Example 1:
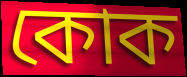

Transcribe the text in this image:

কোক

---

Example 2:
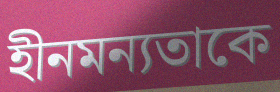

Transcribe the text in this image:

হীনমন্যতাকে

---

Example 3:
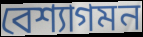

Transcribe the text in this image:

বেশ্যাগমন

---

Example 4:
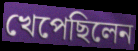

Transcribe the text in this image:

খেপেছিলেন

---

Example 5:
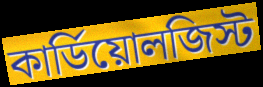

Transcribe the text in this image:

কার্ডিয়োলজিস্ট